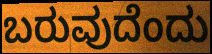
ಬರುವುದೆಂದು